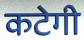
कटेगी